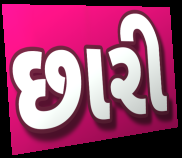
છારી